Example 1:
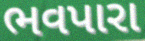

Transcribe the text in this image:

ભવપારા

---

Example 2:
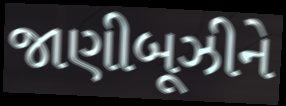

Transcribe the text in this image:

જાણીબૂઝીને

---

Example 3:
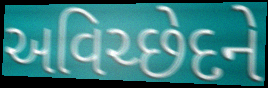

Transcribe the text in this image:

અવિચ્છેદને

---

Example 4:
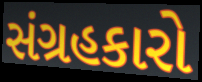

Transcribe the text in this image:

સંગ્રહકારો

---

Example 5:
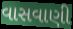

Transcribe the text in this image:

વાસવાણી